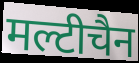
मल्टीचैन